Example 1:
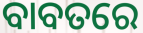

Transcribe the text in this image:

ବାବତରେ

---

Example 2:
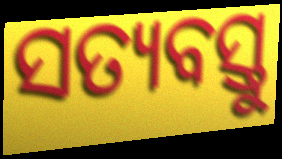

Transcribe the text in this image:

ସତ୍ୟବସ୍ତୁ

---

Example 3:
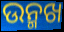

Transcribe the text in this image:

ଉନ୍ମଖ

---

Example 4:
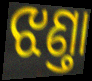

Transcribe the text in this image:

ଝଣ୍ତା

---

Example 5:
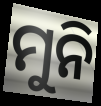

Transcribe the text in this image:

ମୁନି